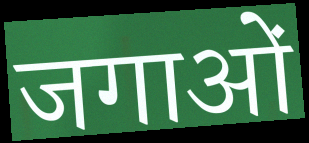
जगाओं